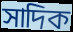
সাদিক